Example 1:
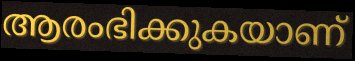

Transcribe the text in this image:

ആരംഭിക്കുകയാണ്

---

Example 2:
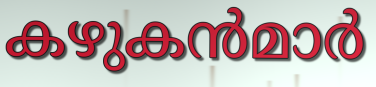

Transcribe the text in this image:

കഴുകൻമാർ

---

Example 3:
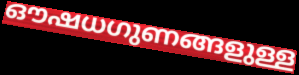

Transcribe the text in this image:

ഔഷധഗുണങ്ങളുള്ള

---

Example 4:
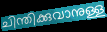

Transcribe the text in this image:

ചിന്തിക്കുവാനുള്ള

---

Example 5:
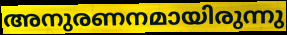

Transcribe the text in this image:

അനുരണനമായിരുന്നു